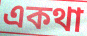
একথা